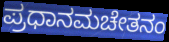
ಪ್ರಧಾನಮಚೇತನಂ